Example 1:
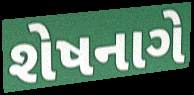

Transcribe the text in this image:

શેષનાગે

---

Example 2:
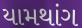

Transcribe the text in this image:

યામથાંગ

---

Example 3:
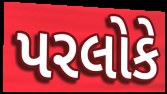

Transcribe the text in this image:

પરલોકે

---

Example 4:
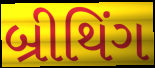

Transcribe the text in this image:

બ્રીથિંગ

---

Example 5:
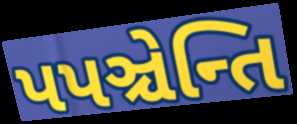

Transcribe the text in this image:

પપઞ્ચેન્તિ